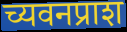
च्यवनप्राश